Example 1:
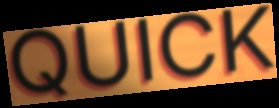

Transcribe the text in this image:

QUICK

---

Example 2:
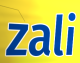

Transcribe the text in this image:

zali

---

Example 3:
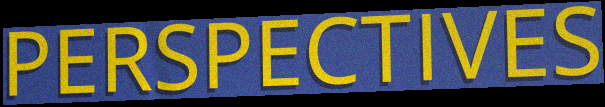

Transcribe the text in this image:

PERSPECTIVES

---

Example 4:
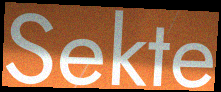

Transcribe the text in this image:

Sekte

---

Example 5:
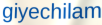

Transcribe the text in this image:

giyechilam